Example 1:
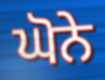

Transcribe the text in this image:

ਘੋਨੇ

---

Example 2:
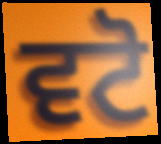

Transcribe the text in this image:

ਵਟੋ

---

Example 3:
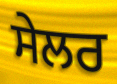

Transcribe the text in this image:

ਸੇਲਰ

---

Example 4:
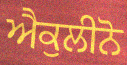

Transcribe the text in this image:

ਐਕੁਲੀਨੋ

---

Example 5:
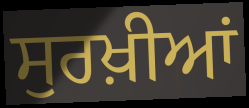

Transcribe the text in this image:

ਸੁਰਖ਼ੀਆਂ